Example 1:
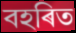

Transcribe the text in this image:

বহৰিত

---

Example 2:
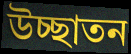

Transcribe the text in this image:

উচ্ছাতন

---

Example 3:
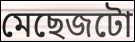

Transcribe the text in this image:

মেছেজটো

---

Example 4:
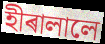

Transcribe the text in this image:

হীৰালালে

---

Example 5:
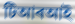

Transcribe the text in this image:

টিআৰআই